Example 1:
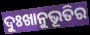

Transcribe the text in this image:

ଦୁଃଖାନୁଭୂତିର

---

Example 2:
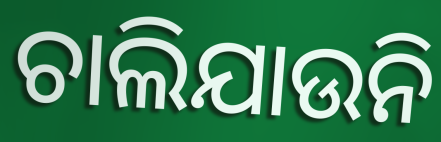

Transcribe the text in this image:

ଚାଲିଯାଉନି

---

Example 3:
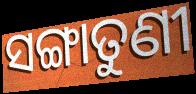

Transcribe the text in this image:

ସଙ୍ଗାତୁଣୀ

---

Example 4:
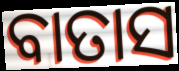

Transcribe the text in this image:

ବାତାସ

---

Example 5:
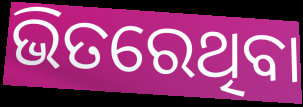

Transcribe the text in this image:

ଭିତରେଥିବା